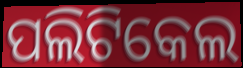
ପଲିଟିକେଲ